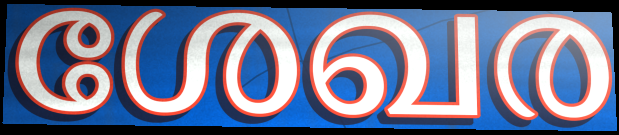
ശേഖര